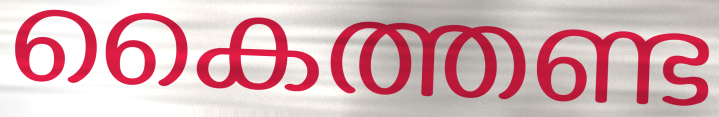
കൈത്തണ്ട